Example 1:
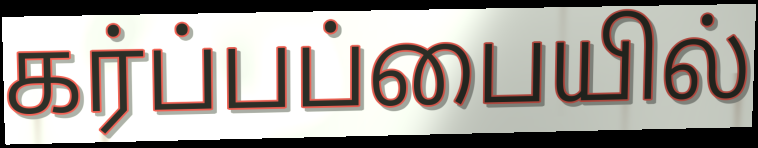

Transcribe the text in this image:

கர்ப்பப்பையில்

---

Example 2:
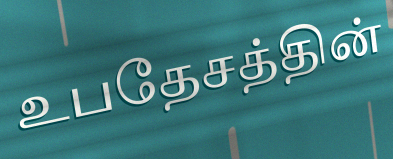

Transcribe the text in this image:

உபதேசத்தின்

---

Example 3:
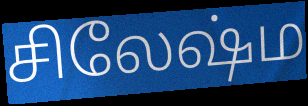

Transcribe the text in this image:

சிலேஷ்ம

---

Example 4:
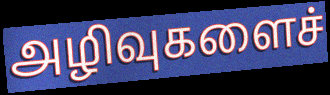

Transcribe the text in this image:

அழிவுகளைச்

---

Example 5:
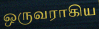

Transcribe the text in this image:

ஒருவராகிய